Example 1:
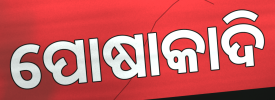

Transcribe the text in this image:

ପୋଷାକାଦି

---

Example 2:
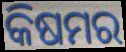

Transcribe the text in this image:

କିଷମର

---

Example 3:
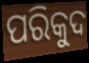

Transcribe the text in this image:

ପରିକୁଦ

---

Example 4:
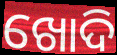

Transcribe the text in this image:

ଖୋଦି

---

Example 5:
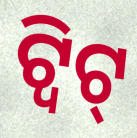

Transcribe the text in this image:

ଟ୍ୱିଟ୍